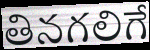
తినగలిగే